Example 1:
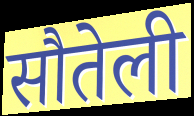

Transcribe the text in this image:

सौतेली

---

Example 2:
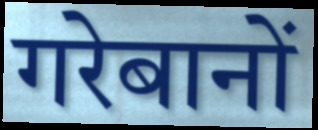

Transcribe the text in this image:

गरेबानों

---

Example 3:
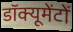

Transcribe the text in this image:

डॉक्यूमेंटों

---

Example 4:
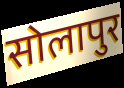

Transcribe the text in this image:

सोलापुर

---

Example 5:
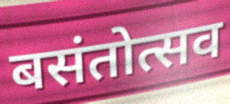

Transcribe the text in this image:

बसंतोत्सव